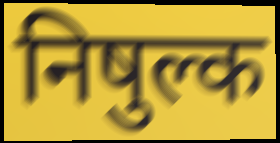
निषुल्क